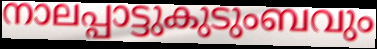
നാലപ്പാട്ടുകുടുംബവും